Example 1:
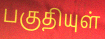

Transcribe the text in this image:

பகுதியுள்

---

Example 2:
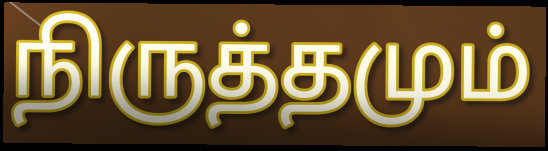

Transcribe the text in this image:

நிருத்தமும்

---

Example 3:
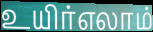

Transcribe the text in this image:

உயிர்எலாம்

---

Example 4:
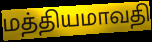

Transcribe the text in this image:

மத்தியமாவதி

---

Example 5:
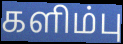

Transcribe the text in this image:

களிம்பு